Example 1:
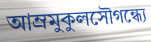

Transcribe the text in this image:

আম্রমুকুলসৌগন্ধ্যে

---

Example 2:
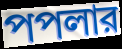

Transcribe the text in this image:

পপলার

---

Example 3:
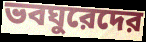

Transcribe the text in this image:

ভবঘুরেদের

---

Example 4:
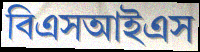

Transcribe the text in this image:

বিএসআইএস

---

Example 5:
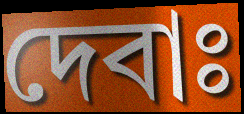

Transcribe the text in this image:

দেবাঃ